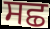
ਸਛ